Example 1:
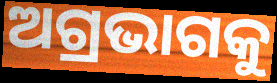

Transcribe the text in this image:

ଅଗ୍ରଭାଗକୁ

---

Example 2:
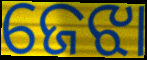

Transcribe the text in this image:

ଜେଝା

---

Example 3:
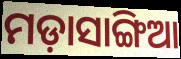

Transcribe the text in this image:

ମଡ଼ାସାଙ୍ଗିଆ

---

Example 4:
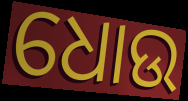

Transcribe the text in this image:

ଧୋଉ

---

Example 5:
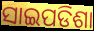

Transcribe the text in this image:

ସାଇପଡିଶା